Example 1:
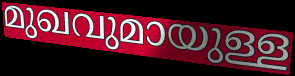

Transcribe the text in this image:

മുഖവുമായുള്ള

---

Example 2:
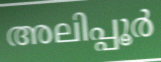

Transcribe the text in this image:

അലിപ്പൂർ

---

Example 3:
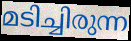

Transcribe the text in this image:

മടിച്ചിരുന്ന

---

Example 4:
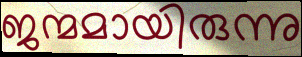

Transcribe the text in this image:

ജന്മമായിരുന്നു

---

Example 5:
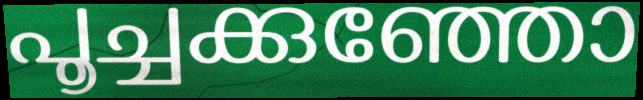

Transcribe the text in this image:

പൂച്ചക്കുഞ്ഞോ